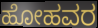
ಹೋಹವರ